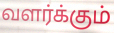
வளர்க்கும்